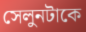
সেলুনটাকে